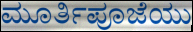
ಮೂರ್ತಿಪೂಜೆಯು